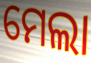
ମେଲା